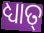
ଧ୍ୟାତ୍